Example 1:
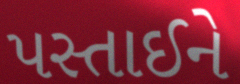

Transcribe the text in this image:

પસ્તાઈને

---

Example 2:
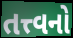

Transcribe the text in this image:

તત્ત્વનો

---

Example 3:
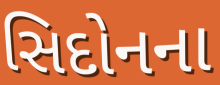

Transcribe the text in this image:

સિદોનના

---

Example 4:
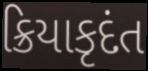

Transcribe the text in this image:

ક્રિયાકૃદંત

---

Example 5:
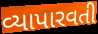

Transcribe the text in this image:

વ્યાપારવતી